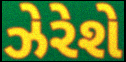
ઝેરેશે